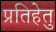
प्रतिहेतु